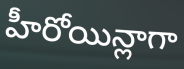
హీరోయిన్లాగా